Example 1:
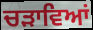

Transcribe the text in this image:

ਚੜਾਵਿਆਂ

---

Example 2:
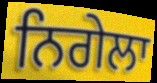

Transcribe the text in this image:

ਨਿਗੇਲਾ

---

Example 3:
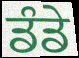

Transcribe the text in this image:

ਡੰਡੇ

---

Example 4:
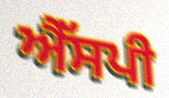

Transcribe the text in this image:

ਐੱਸਪੀ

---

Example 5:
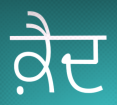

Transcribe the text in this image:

ਕ਼ੈਦ